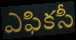
ఎఫికసీ